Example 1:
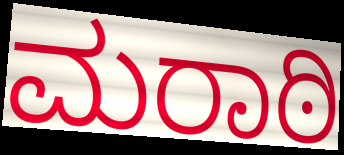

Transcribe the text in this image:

ಮರಾಠಿ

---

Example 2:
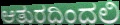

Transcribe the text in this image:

ಆತುರದಿಂದಲಿ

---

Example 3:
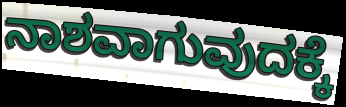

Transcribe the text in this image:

ನಾಶವಾಗುವುದಕ್ಕೆ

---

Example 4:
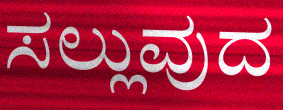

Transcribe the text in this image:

ಸಲ್ಲುವುದ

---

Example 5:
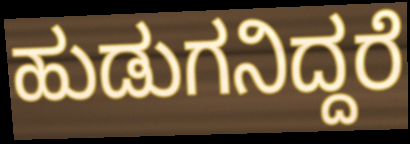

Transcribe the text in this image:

ಹುಡುಗನಿದ್ದರೆ